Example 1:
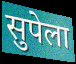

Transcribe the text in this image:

सुपेला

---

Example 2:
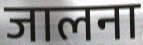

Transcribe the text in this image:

जालना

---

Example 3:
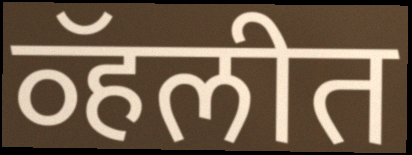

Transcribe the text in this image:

व्हॅलीत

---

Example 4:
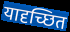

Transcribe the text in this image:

यादृच्छित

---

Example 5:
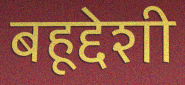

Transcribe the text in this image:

बहूद्देशी